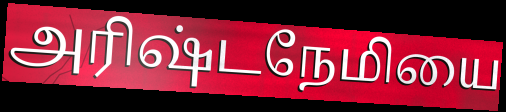
அரிஷ்டநேமியை